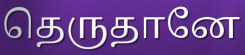
தெருதானே